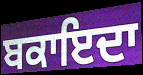
ਬਕਾਇਦਾ